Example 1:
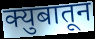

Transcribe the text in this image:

क्युबातून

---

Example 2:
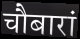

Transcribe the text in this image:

चौबारां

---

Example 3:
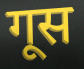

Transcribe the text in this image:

गूस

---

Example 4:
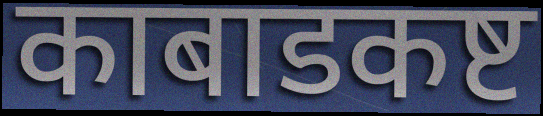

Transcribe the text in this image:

काबाडकष्ट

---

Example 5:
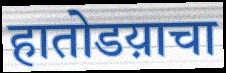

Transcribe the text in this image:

हातोडय़ाचा